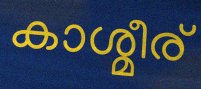
കാശ്മീര്